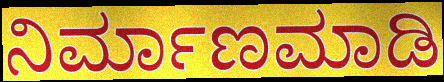
ನಿರ್ಮಾಣಮಾಡಿ